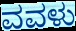
ವವಳು